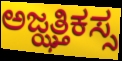
ಅಜ್ಝತ್ತಿಕಸ್ಸ